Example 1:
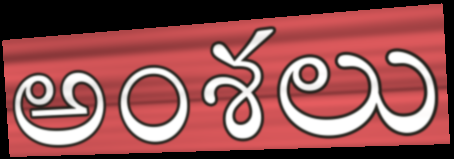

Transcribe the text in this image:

అంశలు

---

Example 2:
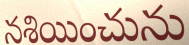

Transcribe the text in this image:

నశియించును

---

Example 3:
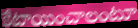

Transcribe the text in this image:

కేటాయించాలంటూ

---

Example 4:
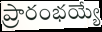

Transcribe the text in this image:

ప్రారంభయ్యే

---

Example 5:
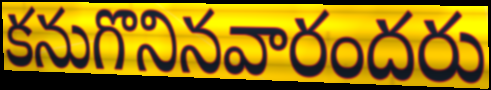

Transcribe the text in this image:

కనుగొనినవారందరు